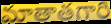
మాతాతగారి